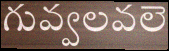
గువ్వలవలె